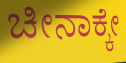
ಚೀನಾಕ್ಕೇ